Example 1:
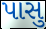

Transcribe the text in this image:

પાસુ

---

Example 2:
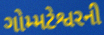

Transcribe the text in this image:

ગોમ્મટેશ્વરની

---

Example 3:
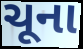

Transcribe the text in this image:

ચૂના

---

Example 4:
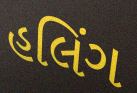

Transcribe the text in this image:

હલિંગ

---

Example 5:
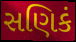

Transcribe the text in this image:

સણિકં